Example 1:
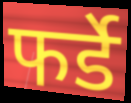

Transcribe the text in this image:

फर्डे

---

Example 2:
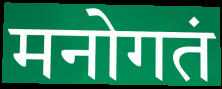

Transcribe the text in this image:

मनोगतं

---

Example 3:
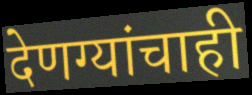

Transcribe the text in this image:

देणग्यांचाही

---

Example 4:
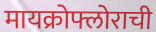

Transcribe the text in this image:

मायक्रोफ्लोराची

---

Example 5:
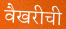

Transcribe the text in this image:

वैखरीची